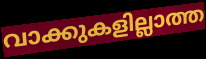
വാക്കുകളില്ലാത്ത